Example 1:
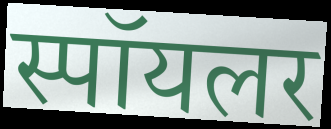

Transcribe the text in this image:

स्पॉयलर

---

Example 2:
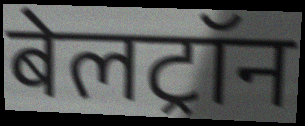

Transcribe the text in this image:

बेलट्रॉन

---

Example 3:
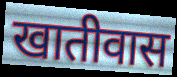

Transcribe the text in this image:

खातीवास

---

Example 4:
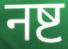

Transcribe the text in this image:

नष्ट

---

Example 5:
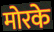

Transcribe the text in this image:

मोरके